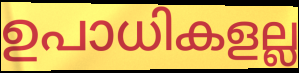
ഉപാധികളല്ല